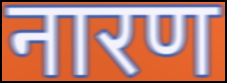
नारण